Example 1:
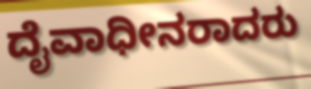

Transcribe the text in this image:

ದೈವಾಧೀನರಾದರು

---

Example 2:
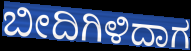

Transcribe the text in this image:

ಬೀದಿಗಿಳಿದಾಗ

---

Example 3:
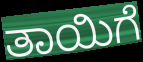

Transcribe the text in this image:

ತಾಯಿಗೆ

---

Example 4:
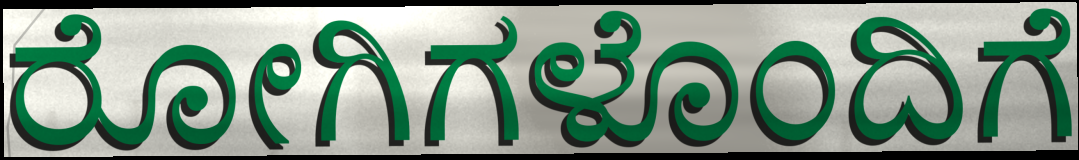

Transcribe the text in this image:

ರೋಗಿಗಳೊಂದಿಗೆ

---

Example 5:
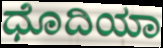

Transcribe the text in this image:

ಧೊದಿಯಾ